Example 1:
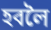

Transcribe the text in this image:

হবলৈ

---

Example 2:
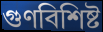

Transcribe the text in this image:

গুণবিশিষ্ট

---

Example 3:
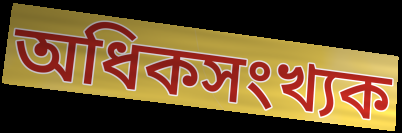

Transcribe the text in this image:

অধিকসংখ্যক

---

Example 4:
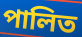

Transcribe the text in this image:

পালিত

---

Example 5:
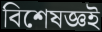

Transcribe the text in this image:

বিশেষজ্ঞই